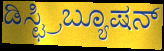
ಡಿಸ್ಟ್ರಿಬ್ಯೂಷನ್